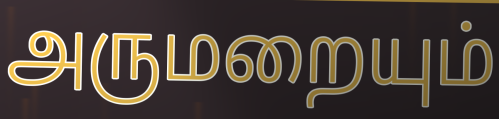
அருமறையும்